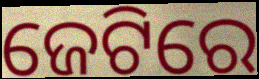
ଜେଟିରେ